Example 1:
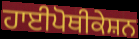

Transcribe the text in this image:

ਹਾਈਪੋਥੀਕੇਸ਼ਨ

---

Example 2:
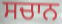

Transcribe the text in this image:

ਸਚਾਨ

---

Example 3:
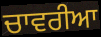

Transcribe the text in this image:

ਚਾਵਰੀਆ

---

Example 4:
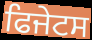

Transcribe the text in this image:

ਫਿਜੇਟਸ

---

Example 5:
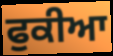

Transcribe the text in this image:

ਫੁਕੀਆ